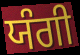
ਯੰਗੀ